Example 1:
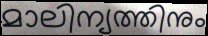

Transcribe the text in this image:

മാലിന്യത്തിനും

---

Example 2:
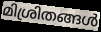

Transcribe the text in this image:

മിശ്രിതങ്ങൾ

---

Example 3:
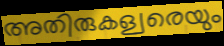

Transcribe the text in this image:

അതിരുകള്വരെയും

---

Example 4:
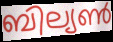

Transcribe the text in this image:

ബില്യൺ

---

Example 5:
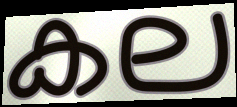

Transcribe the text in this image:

കല